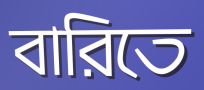
বারিতে